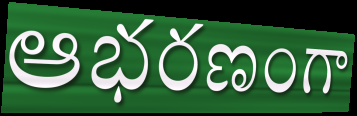
ఆభరణంగా